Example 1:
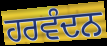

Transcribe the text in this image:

ਹਰਵੰਦਨ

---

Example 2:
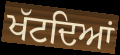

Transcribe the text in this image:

ਖੱਟਦਿਆਂ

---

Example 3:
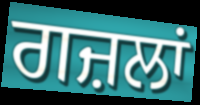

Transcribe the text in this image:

ਗਜ਼ਲਾਂ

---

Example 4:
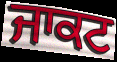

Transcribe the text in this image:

ਜਾਕਟ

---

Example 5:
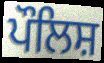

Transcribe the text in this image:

ਪੌਲਿਸ਼